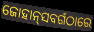
ଜୋହାନ୍‌ସବର୍ଗଠାରେ